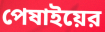
পেষাইয়ের